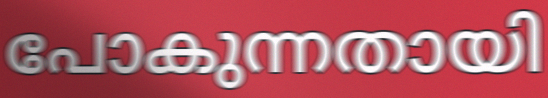
പോകുന്നതായി